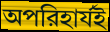
অপরিহার্যই